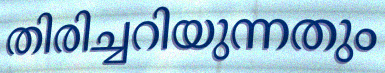
തിരിച്ചറിയുന്നതും